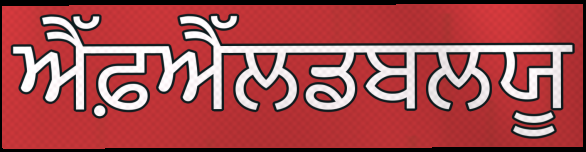
ਐੱਫ਼ਐੱਲਡਬਲਯੂ